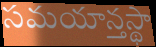
సమయాన్తస్థా